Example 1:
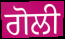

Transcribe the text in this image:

ਗੋਲੀ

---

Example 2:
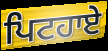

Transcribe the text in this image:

ਪਿਟਹਾਏ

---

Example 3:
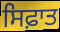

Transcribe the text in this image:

ਸਿਫ਼ਾਤ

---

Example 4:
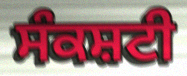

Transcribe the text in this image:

ਸੰਕਸ਼ਟੀ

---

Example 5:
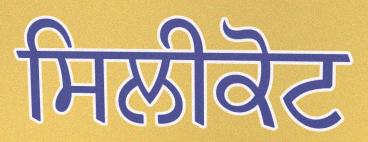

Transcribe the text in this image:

ਸਿਲੀਕੋਟ